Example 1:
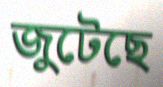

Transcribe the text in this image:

জুটেছে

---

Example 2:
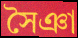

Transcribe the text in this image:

সৈঞা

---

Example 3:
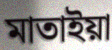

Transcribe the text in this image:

মাতাইয়া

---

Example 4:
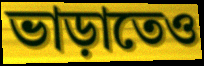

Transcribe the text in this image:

ভাড়াতেও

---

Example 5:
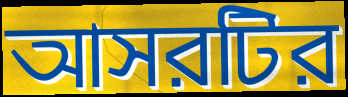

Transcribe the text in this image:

আসরটির